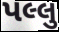
પલ્લુ